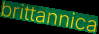
brittannica